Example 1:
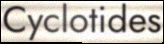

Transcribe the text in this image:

Cyclotides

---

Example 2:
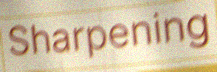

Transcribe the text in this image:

Sharpening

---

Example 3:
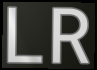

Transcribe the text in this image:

LR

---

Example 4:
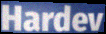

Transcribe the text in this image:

Hardev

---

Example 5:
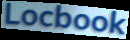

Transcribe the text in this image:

Locbook